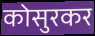
कोसुरकर